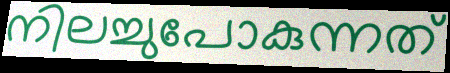
നിലച്ചുപോകുന്നത്